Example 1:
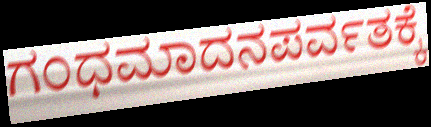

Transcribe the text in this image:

ಗಂಧಮಾದನಪರ್ವತಕ್ಕೆ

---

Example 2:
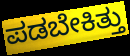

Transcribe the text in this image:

ಪಡಬೇಕಿತ್ತು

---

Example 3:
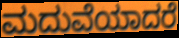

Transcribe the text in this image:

ಮದುವೆಯಾದರೆ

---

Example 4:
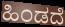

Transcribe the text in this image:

ಹಿಂಡದೆ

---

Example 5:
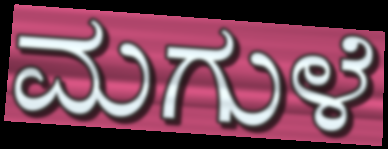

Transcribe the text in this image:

ಮಗುಳೆ